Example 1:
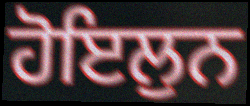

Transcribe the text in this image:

ਹੋਇਲੁਨ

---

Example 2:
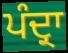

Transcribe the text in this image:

ਪੰਦ੍ਰਾ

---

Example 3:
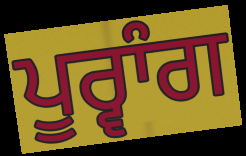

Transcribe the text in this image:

ਪੂਰ੍ਵਾੰਗ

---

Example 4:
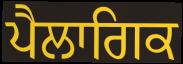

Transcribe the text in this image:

ਪੈਲਾਗਿਕ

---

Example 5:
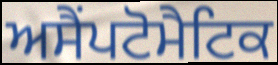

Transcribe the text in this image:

ਅਸੈਂਪਟੋਮੈਟਿਕ